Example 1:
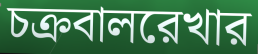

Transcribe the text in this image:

চক্রবালরেখার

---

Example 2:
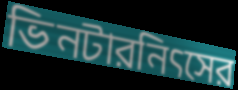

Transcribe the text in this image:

ভিনটারনিৎসের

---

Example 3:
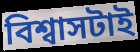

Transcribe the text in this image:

বিশ্বাসটাই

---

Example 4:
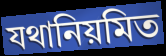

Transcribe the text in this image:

যথানিয়মিত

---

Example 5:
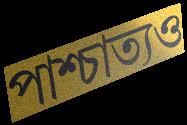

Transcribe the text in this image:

পাশ্চাত্যও